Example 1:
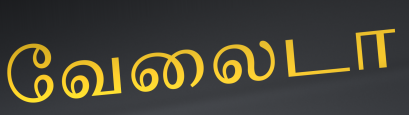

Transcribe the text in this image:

வேலைடா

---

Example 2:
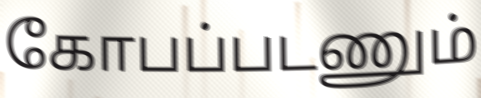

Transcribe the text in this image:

கோபப்படணும்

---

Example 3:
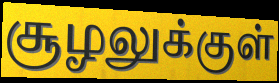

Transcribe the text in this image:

சூழலுக்குள்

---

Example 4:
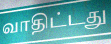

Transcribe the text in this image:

வாதிட்டது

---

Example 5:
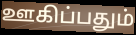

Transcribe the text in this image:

ஊகிப்பதும்